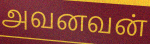
அவனவன்